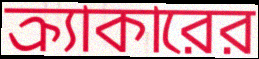
ক্র্যাকারের